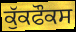
ਕੁੱਕਫੌਕਸ